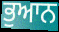
ਭੁਆਨ